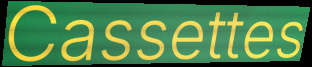
Cassettes